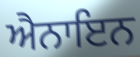
ਐਨਾਇਨ